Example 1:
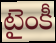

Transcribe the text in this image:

టైంకీ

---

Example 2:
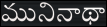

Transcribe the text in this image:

మునినాథా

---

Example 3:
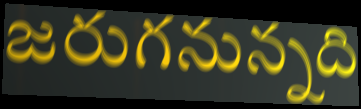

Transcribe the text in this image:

జరుగనున్నది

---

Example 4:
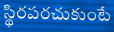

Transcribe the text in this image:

స్థిరపరచుకుంటే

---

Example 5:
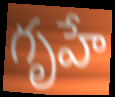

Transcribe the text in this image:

గృహే